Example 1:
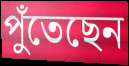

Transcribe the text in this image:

পুঁতেছেন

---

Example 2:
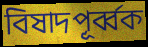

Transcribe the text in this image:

বিষাদপূর্ব্বক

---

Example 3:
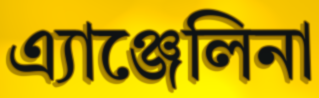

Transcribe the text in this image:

এ্যাঞ্জেলিনা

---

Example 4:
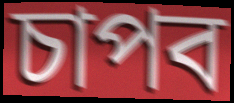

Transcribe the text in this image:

চাপব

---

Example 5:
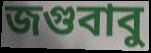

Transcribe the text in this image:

জগুবাবু